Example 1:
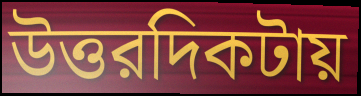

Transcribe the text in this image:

উত্তরদিকটায়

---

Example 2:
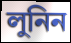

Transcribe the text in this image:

লুনিন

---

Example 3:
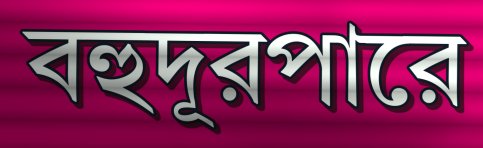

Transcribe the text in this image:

বহুদূরপারে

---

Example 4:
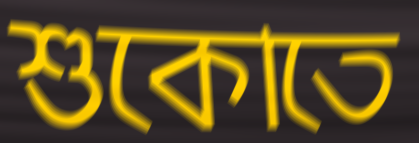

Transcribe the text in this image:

শুকোতে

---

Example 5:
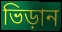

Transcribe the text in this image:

ভিড়ান